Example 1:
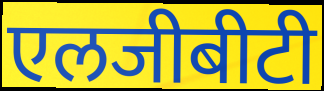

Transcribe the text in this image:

एलजीबीटी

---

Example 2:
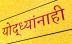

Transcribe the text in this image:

योद्ध्यांनाही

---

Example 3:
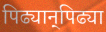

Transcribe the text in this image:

पिढ्यान्‌पिढ्या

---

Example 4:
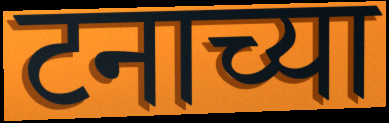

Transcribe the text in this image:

टनाच्या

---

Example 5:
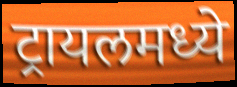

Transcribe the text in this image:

ट्रायलमध्ये